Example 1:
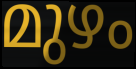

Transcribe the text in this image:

മുഴം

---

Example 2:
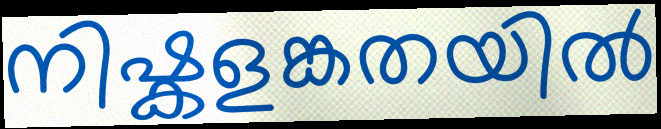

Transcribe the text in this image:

നിഷ്കളങ്കതയിൽ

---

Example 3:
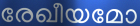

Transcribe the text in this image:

രേഖീയമോ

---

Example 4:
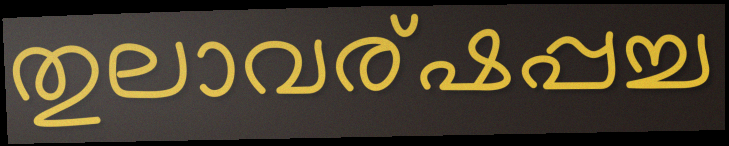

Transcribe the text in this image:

തുലാവര്ഷപ്പച്ച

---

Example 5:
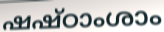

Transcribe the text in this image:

ഷഷ്ഠാംശാം